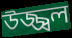
উজ্জ্বল